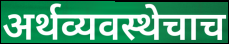
अर्थव्यवस्थेचाच